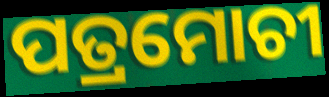
ପତ୍ରମୋଚୀ